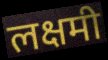
लक्षमी